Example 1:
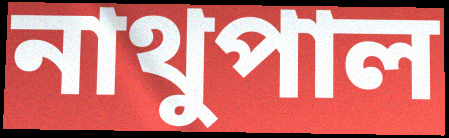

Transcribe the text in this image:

নাথুপাল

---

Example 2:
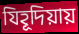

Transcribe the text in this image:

যিহূদিয়ায়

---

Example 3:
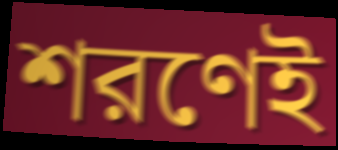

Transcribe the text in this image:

শরণেই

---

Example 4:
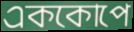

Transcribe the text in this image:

এককোপে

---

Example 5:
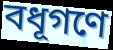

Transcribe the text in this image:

বধূগণে